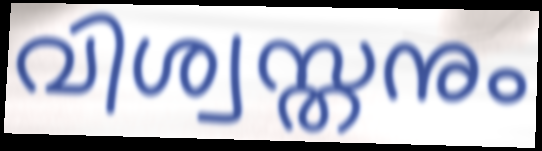
വിശ്വസ്തനും